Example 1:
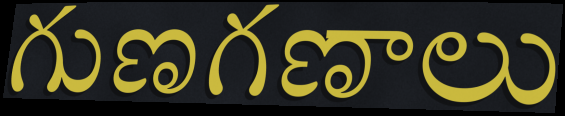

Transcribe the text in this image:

గుణగణాలు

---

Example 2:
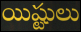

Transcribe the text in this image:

యిష్టులు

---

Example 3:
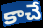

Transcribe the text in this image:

కాచే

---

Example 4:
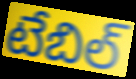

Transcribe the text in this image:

టేబిల్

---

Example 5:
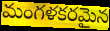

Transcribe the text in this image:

మంగళకరమైన